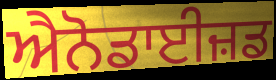
ਐਨੋਡਾਈਜ਼ਡ